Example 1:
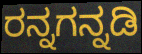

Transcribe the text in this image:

ರನ್ನಗನ್ನಡಿ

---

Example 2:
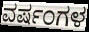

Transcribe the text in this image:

ವರ್ಷಂಗಳ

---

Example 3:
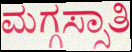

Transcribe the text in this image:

ಮಗ್ಗಸ್ಸಾತಿ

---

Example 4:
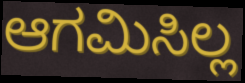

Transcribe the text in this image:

ಆಗಮಿಸಿಲ್ಲ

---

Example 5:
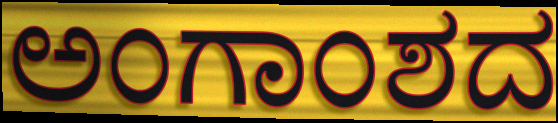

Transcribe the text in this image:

ಅಂಗಾಂಶದ